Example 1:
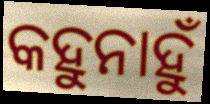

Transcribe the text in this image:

କହୁନାହୁଁ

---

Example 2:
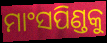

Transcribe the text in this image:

ମାଂସପିଣ୍ଡକୁ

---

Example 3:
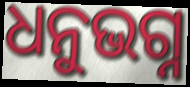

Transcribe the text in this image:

ଧନୁଭଗ୍ନ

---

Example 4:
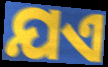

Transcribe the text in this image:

ଯଏ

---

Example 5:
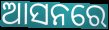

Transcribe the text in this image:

ଆସନରେ